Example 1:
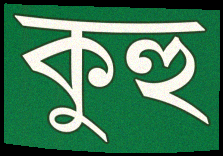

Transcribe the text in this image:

কুহু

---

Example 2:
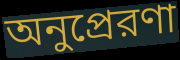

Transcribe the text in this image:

অনুপ্রেরণা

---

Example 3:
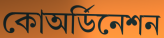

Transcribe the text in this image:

কোঅর্ডিনেশন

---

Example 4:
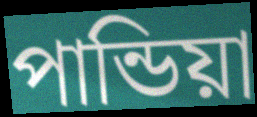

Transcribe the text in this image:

পান্ডিয়া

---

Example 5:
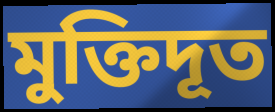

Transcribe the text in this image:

মুক্তিদূত